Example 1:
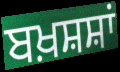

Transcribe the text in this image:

ਬਖ਼ਸ਼ਸ਼ਾਂ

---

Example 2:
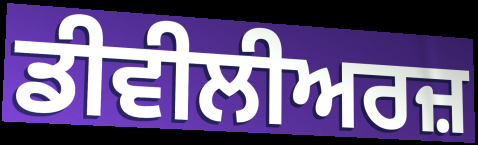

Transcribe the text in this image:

ਡੀਵੀਲੀਅਰਜ਼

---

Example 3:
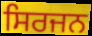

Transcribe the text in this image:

ਸਿਰਜਨ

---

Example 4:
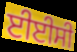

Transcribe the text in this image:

ਈਈਸੀ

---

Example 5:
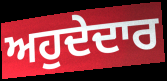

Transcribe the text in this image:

ਅਹੁਦੇਦਾਰ